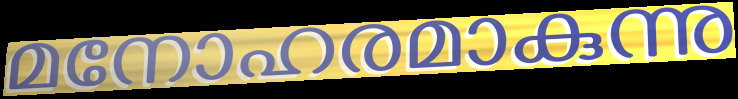
മനോഹരമാകുന്നു